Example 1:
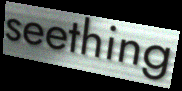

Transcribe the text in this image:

seething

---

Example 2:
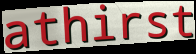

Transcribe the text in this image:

athirst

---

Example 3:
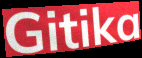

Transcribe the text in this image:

Gitika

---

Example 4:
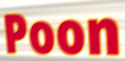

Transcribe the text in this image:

Poon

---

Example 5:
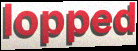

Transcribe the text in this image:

lopped